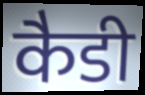
कैडी